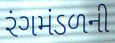
રંગમંડળની